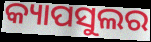
କ୍ୟାପସୁଲର